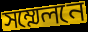
সম্মেলনে